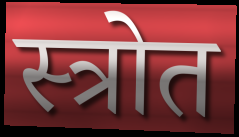
स्त्रोत